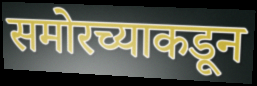
समोरच्याकडून